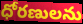
ధోరణులను